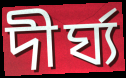
দীর্ঘ্য